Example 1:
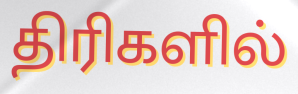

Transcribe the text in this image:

திரிகளில்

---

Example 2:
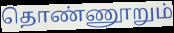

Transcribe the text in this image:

தொண்ணூறும்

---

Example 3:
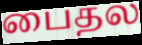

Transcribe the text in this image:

பைதல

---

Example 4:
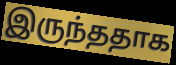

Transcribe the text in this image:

இருந்ததாக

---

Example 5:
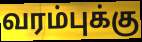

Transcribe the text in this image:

வரம்புக்கு